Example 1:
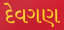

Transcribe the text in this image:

દેવગણ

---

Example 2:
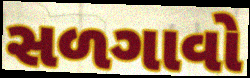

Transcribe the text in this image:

સળગાવો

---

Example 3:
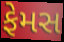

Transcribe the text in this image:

ફેમસ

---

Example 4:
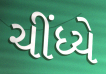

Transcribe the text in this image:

ચીંધ્યે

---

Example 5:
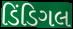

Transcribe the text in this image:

ડિંડિગલ